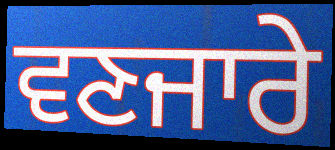
ਵਣਜਾਰੇ